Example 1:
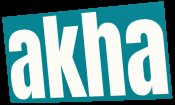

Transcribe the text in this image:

akha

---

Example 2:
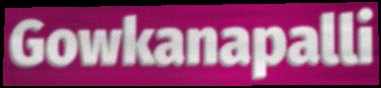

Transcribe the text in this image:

Gowkanapalli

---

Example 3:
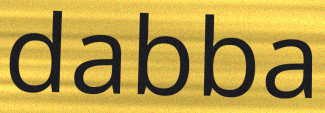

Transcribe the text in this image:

dabba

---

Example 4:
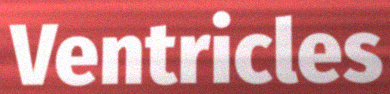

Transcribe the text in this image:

Ventricles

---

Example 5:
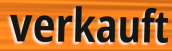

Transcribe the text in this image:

verkauft